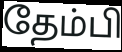
தேம்பி